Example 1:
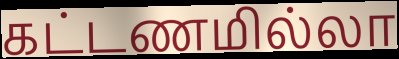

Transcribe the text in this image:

கட்டணமில்லா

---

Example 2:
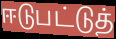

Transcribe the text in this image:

ஈடுபட்டுத்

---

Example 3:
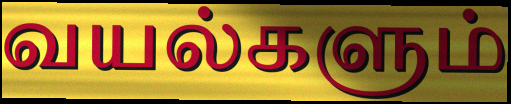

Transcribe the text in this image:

வயல்களும்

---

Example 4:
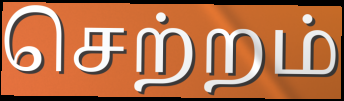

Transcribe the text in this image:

செற்றம்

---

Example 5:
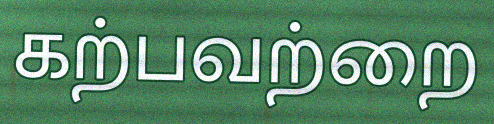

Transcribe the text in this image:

கற்பவற்றை